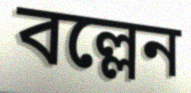
বল্লেন